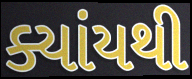
ક્યાંયથી